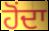
ਹੋਂਦਾ